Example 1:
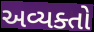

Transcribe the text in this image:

અવ્યક્તો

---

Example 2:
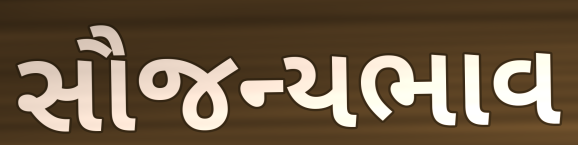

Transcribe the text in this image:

સૌજન્યભાવ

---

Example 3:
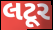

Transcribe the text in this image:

લટૂર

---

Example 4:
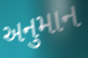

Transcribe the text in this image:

અનુમાન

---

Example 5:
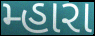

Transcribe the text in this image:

મ્હારા